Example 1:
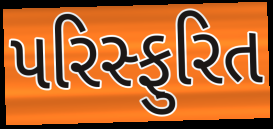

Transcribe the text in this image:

પરિસ્ફુરિત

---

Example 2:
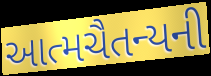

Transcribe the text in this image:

આત્મચૈતન્યની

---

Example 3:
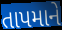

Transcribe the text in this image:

તાપમાને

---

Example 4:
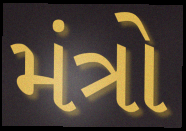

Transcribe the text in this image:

મંત્રો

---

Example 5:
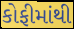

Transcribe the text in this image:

કોફીમાંથી